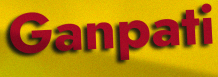
Ganpati